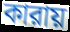
কারায়